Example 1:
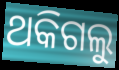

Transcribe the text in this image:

ଥକିଗଲୁ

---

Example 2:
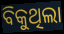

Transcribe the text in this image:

ବିକୁଥିଲା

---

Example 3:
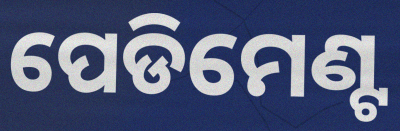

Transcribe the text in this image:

ପେଡିମେଣ୍ଟ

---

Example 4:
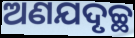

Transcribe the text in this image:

ଅଣଯଦୃଚ୍ଛ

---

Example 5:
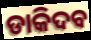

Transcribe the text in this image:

ଡାକିଦବ